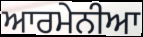
ਆਰਮੇਨੀਆ